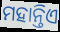
ମହାନ୍ତିଏ